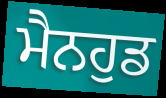
ਮੈਨਹੁਡ